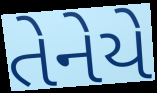
તેનેયે